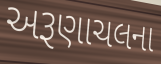
અરૂણાચલના